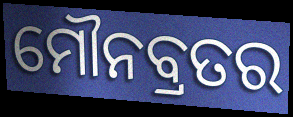
ମୌନବ୍ରତର